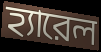
হ্যারেল